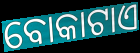
ବୋକାଟାଏ